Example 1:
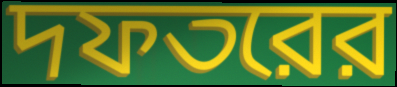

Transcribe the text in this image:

দফতরের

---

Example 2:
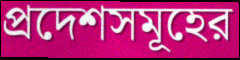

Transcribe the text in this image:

প্রদেশসমূহের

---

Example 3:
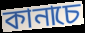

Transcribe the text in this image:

কানাচে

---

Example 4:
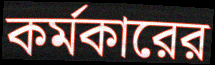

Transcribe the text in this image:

কর্মকারের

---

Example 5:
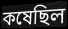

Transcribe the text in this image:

কষেছিল